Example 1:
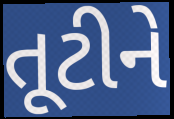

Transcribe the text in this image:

તૂટીને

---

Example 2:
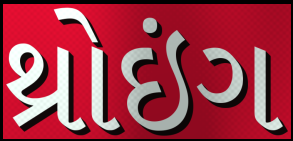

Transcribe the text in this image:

થ્રોઇંગ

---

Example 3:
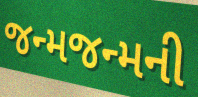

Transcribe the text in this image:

જન્મજન્મની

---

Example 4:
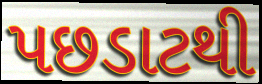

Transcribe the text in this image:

પછડાટથી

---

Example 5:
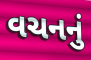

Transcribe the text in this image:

વચનનું